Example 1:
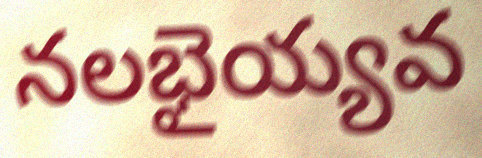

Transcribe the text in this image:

నలభైయ్యవ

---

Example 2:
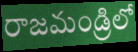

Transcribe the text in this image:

రాజమండ్రిలో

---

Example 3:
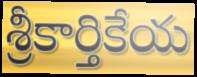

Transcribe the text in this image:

శ్రీకార్తికేయ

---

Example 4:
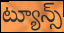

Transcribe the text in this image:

ట్యూన్స్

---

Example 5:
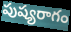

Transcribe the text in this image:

పుష్యరాగం